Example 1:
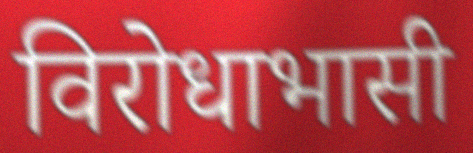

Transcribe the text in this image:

विरोधाभासी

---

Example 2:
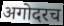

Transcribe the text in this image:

अगोदरच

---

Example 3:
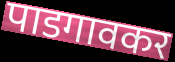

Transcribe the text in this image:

पाडगावकर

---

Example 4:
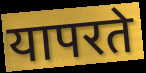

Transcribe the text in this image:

यापरते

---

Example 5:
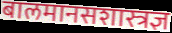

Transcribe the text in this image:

बालमानसशास्त्रज्ञ